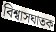
বিশ্বাসঘাতক